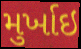
મુર્ખાઇ